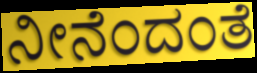
ನೀನೆಂದಂತೆ